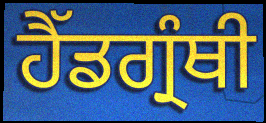
ਹੈੱਡਗ੍ਰੰਥੀ